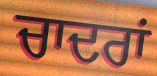
ਚਾਦਰਾਂ